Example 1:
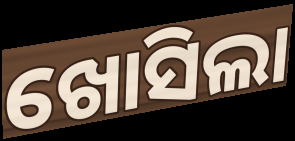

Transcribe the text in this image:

ଖୋସିଲା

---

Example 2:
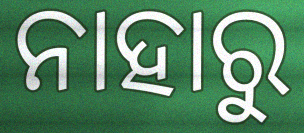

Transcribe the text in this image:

ନାହାରୁ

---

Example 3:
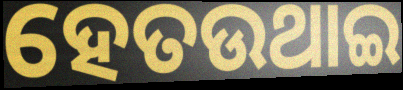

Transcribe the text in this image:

ହେତଉଥାଇ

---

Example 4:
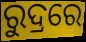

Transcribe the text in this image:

ରୁଦ୍ରରେ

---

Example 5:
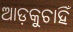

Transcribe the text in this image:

ଆଡ଼କୁଚାହିଁ